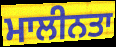
ਮਾਲੀਨਤਾ